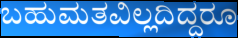
ಬಹುಮತವಿಲ್ಲದಿದ್ದರೂ